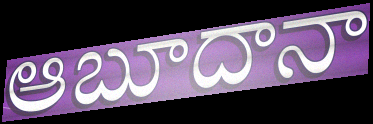
ఆబూదానా